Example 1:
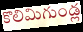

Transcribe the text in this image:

కొలిమిగుండ్ల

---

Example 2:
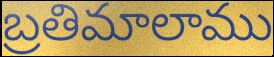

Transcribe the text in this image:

బ్రతిమాలాము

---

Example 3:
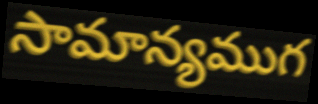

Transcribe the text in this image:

సామాన్యముగ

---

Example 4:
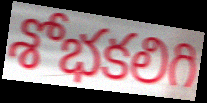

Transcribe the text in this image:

శోభకలిగి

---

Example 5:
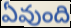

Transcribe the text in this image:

ఏవుంది